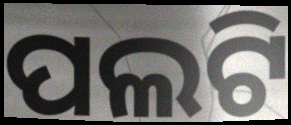
ପଲଟି